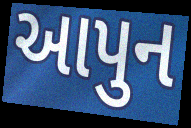
આપુન